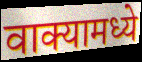
वाक्यामध्ये